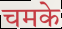
चमके